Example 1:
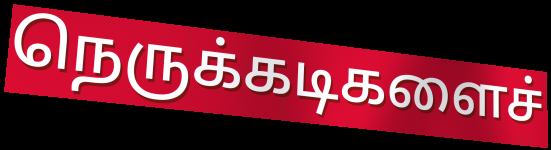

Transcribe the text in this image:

நெருக்கடிகளைச்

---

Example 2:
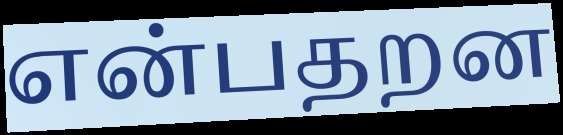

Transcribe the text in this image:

என்பதறன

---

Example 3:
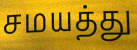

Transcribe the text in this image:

சமயத்து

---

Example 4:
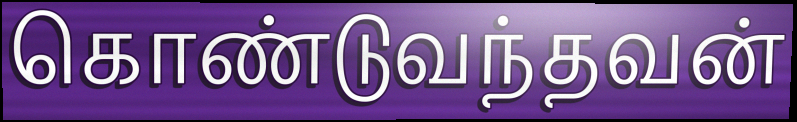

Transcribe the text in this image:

கொண்டுவந்தவன்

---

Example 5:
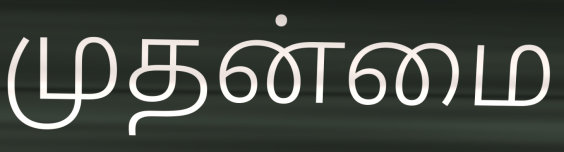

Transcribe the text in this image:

முதன்மை